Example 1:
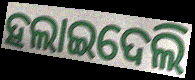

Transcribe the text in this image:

ହଲାଇଦେଲି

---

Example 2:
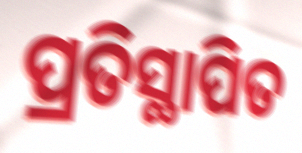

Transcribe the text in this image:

ପ୍ରତିସ୍ଥାପିତ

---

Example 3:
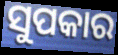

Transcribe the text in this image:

ସୁପକାର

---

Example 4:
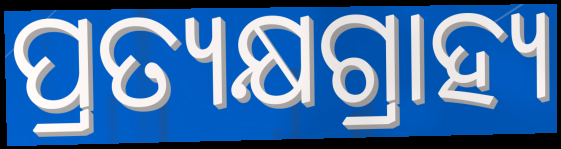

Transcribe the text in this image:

ପ୍ରତ୍ୟକ୍ଷଗ୍ରାହ୍ୟ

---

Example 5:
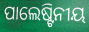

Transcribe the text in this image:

ପାଲେଷ୍ଟିନୀୟ